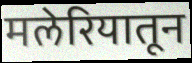
मलेरियातून